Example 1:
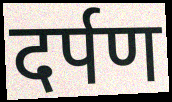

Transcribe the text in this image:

दर्पण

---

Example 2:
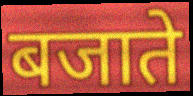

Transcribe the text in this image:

बजाते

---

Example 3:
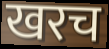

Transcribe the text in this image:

खरच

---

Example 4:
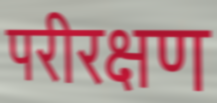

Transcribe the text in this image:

परीरक्षण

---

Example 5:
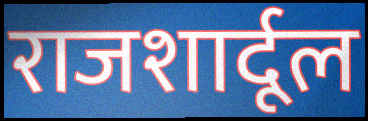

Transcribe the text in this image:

राजशार्दूल